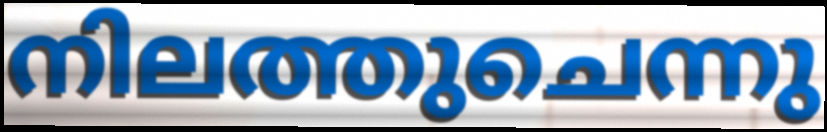
നിലത്തുചെന്നു